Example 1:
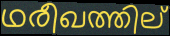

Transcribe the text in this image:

ഥരീഖത്തില്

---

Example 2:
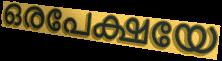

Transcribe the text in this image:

ഒരപേക്ഷയേ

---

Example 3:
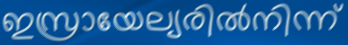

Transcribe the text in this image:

ഇസ്രായേല്യരിൽനിന്ന്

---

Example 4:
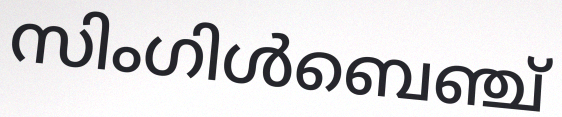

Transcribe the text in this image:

സിംഗിൾബെഞ്ച്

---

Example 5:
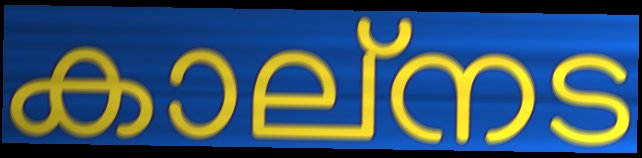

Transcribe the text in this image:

കാല്നട